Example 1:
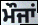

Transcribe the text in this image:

ਮੌਜਾਂ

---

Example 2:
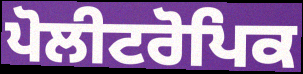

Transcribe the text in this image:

ਪੋਲੀਟਰੋਪਿਕ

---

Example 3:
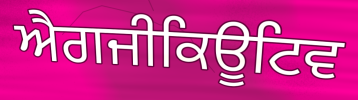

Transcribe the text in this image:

ਐਗਜੀਕਿਊਟਿਵ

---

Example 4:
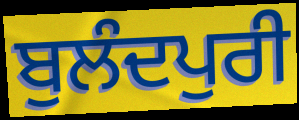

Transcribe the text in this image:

ਬੁਲੰਦਪੁਰੀ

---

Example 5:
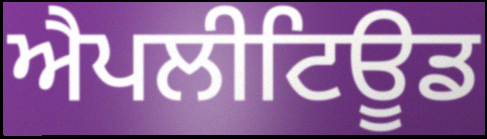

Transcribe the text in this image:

ਐਪਲੀਟਿਊਡ